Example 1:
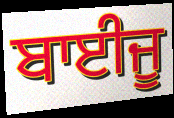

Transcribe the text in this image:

ਬਾਈਜੂ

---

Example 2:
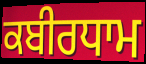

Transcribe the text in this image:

ਕਬੀਰਧਾਮ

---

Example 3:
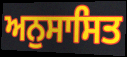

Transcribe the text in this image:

ਅਨੁਸਾਸਿਤ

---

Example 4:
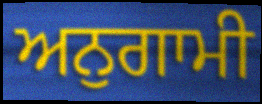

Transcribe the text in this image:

ਅਨੁਗਾਮੀ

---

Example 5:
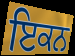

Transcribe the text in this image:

ਇਕਨ